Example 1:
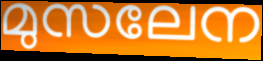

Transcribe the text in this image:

മുസലേന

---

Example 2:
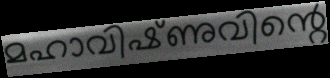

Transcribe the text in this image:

മഹാവിഷ്‌ണുവിന്റെ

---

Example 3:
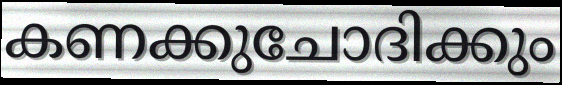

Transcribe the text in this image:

കണക്കുചോദിക്കും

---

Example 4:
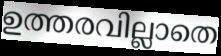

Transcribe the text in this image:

ഉത്തരവില്ലാതെ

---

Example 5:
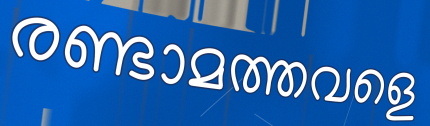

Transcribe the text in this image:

രണ്ടാമത്തവളെ